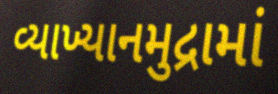
વ્યાખ્યાનમુદ્રામાં